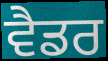
ਵੈਡਰ